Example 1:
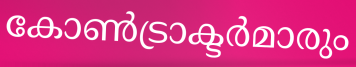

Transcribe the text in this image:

കോൺട്രാക്ടർമാരും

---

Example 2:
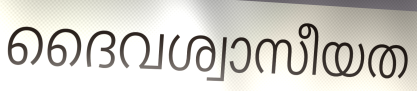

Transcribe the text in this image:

ദൈവശ്വാസീയത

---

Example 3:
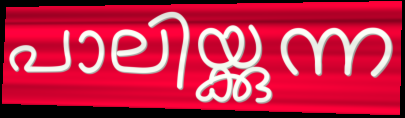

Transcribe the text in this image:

പാലിയ്ക്കുന്ന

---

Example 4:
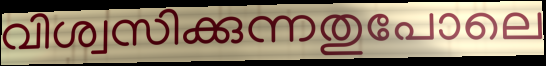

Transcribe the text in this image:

വിശ്വസിക്കുന്നതുപോലെ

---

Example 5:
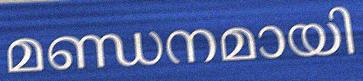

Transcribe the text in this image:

മണ്ഡനമായി